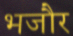
भजौर